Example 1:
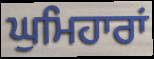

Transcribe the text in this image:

ਘੁਮਿਹਾਰਾਂ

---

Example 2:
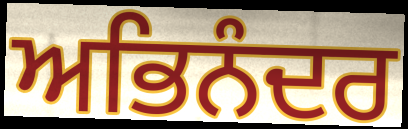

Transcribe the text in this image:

ਅਭਿਨੰਦਰ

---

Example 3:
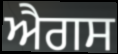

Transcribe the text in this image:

ਐਗਸ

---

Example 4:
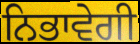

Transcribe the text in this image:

ਨਿਭਾਵੇਗੀ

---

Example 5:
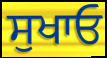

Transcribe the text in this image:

ਸੁਖਾਓ